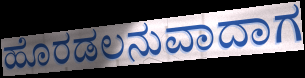
ಹೊರಡಲನುವಾದಾಗ